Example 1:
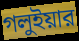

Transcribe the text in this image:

গলুইয়ার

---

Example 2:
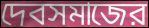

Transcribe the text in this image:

দেবসমাজের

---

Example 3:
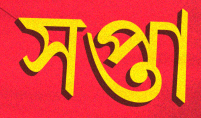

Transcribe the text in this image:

সপ্তা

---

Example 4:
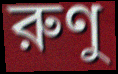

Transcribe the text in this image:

রুণু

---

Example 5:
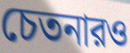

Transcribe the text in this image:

চেতনারও